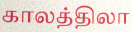
காலத்திலா